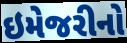
ઇમેજરીનો